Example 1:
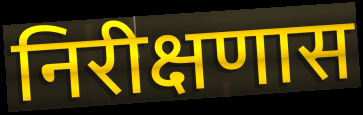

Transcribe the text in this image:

निरीक्षणास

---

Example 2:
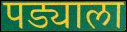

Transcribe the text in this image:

पड्याला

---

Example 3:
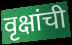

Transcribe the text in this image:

वृक्षांची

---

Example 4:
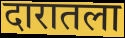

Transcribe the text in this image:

दारातला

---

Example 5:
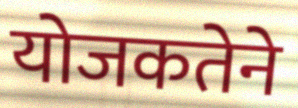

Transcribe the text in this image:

योजकतेने